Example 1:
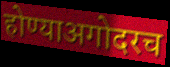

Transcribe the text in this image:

होण्याअगोदरच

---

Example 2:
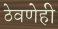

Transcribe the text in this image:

ठेवणेही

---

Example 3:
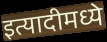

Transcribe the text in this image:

इत्यादीमध्ये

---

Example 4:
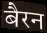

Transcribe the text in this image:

बैरन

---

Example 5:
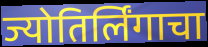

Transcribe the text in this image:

ज्योतिर्लिंगाचा